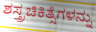
ಶಸ್ತ್ರಚಿಕಿತ್ಸೆಗಳನ್ನು